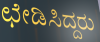
ಛೇಡಿಸಿದ್ದರು